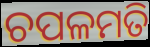
ଚପଳମତି